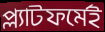
প্ল্যাটফর্মেই